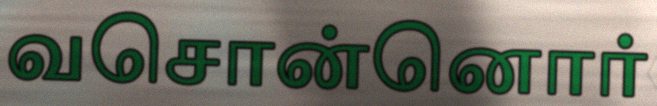
வசொன்னொர்